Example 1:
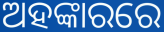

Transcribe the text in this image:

ଅହଙ୍କାରରେ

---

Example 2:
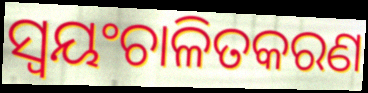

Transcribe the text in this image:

ସ୍ୱୟଂଚାଳିତକରଣ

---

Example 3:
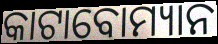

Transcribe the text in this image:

କାଟାବୋମ୍ୟାନ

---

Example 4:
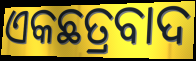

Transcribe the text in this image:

ଏକଛତ୍ରବାଦ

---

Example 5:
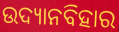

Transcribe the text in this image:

ଉଦ୍ୟାନବିହାର